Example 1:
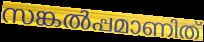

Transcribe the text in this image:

സങ്കൽപ്പമാണിത്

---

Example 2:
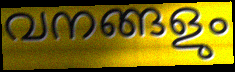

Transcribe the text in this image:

വനങ്ങളും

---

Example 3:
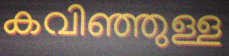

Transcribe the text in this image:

കവിഞ്ഞുള്ള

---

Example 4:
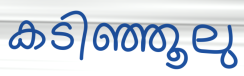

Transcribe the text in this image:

കടിഞ്ഞൂലു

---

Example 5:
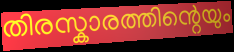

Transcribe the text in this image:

തിരസ്കാരത്തിന്റെയും